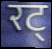
रट्